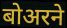
बोअरने